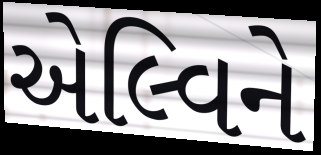
એલ્વિને